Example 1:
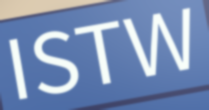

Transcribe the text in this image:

ISTW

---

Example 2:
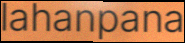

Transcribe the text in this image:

lahanpana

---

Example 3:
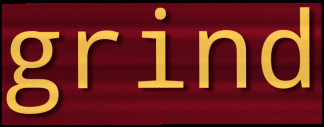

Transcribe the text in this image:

grind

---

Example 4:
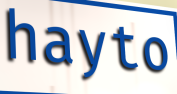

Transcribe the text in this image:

hayto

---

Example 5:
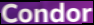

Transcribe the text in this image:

Condor